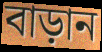
বাড়ান